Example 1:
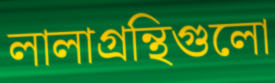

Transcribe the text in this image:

লালাগ্রন্থিগুলো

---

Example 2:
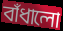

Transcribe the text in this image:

বাঁধালো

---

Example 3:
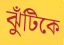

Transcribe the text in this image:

ঝুঁটিকে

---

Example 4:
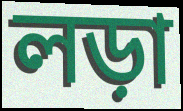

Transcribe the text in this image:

লড়া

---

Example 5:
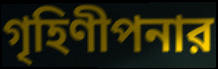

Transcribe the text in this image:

গৃহিণীপনার